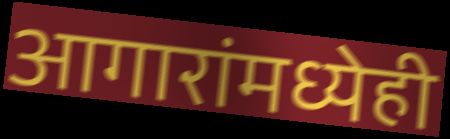
आगारांमध्येही